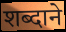
शब्दाने